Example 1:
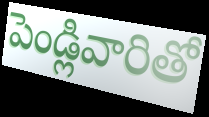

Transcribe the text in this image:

పెండ్లివారితో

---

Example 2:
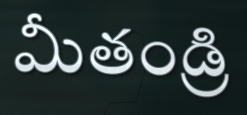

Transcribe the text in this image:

మీతండ్రి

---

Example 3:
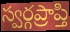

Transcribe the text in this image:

స్వర్గప్రాప్తి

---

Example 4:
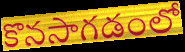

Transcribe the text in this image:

కొనసాగడంలో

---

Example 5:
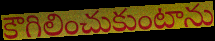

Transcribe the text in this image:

కౌగిలించుకుంటాను